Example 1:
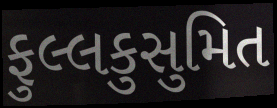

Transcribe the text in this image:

ફુલ્લકુસુમિત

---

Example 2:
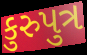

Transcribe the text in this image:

કુરુપુત્ર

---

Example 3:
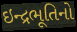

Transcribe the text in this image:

ઇન્દ્રભૂતિનો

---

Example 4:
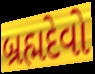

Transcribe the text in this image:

બ્રહ્મદેવો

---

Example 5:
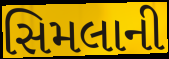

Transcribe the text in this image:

સિમલાની